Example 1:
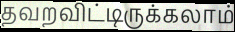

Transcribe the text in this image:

தவறவிட்டிருக்கலாம்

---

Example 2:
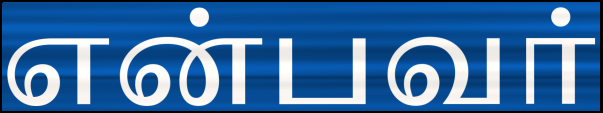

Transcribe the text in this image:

என்பவர்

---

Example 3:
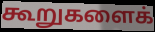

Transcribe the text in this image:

கூறுகளைக்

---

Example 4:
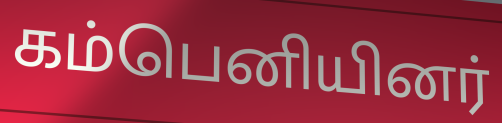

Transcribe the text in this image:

கம்பெனியினர்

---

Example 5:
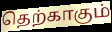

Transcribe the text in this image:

தெற்காகும்